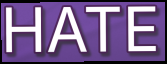
HATE